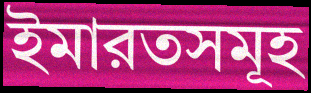
ইমারতসমূহ